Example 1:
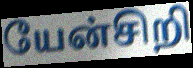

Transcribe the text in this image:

யேன்சிறி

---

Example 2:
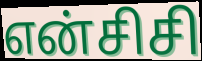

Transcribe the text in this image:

என்சிசி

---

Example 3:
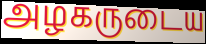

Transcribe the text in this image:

அழகருடைய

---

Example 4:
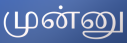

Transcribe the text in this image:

முன்னு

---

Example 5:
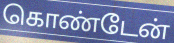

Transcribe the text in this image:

கொண்டேன்